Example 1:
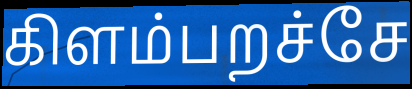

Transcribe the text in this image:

கிளம்பறச்சே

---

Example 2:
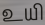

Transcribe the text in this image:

உயி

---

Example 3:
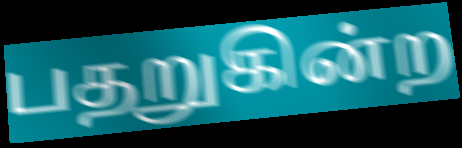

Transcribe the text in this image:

பதறுகின்ற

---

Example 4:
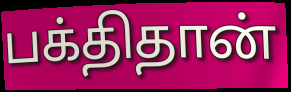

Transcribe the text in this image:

பக்திதான்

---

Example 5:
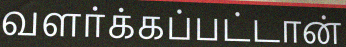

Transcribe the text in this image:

வளர்க்கப்பட்டான்